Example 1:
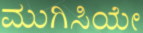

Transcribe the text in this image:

ಮುಗಿಸಿಯೇ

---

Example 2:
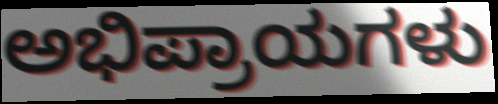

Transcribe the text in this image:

ಅಭಿಪ್ರಾಯಗಳು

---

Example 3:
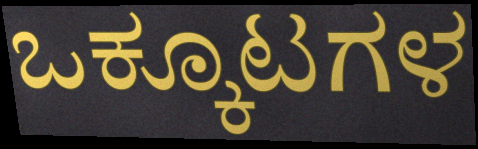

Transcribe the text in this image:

ಒಕ್ಕೂಟಗಳ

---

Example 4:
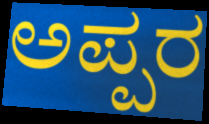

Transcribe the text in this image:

ಅಪ್ಪರ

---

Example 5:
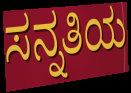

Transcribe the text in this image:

ಸನ್ನತಿಯ